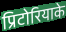
प्रिटोरियाके